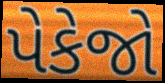
પેકેજો